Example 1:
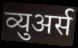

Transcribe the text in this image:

व्युअर्स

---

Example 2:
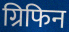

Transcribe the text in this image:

ग्रिफिन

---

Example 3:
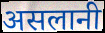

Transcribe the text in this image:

असलानी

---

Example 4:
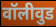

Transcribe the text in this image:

वॉलीवुड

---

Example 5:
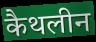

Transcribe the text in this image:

कैथलीन